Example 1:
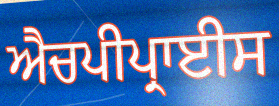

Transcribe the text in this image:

ਐਚਪੀਪ੍ਰਾਈਸ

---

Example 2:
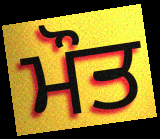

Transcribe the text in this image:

ਮੌਤ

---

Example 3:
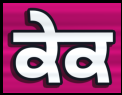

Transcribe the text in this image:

ਕੇਕ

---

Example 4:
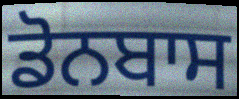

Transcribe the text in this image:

ਡੋਨਬਾਸ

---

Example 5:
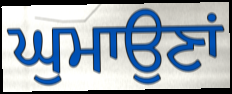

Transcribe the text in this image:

ਘੁਮਾਉਣਾਂ